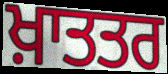
ਖ਼ਾਤਤਰ